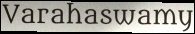
Varahaswamy